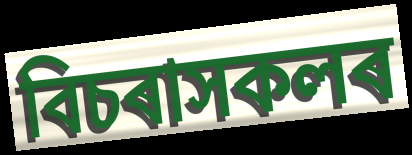
বিচৰাসকলৰ